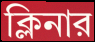
ক্লিনার